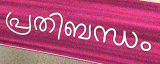
പ്രതിബന്ധം